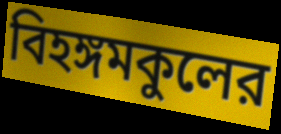
বিহঙ্গমকুলের